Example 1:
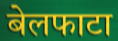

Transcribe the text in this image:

बेलफाटा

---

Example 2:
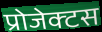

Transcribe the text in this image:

प्रोजेक्‍टस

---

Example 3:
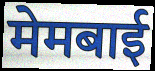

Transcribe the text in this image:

मेमबाई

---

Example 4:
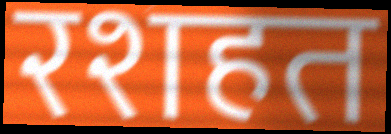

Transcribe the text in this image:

रशहत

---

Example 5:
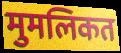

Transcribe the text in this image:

मुमलिकत